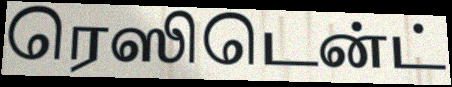
ரெஸிடென்ட்